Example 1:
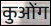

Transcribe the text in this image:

कुओंग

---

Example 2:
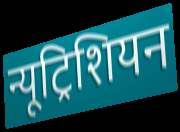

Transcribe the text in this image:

न्यूट्रिशियन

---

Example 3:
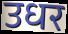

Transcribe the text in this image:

उधर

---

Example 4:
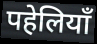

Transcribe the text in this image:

पहेलियाँ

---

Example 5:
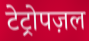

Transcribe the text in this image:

टेट्रोपज़ल